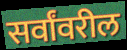
सर्वांवरील